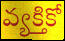
వ్యక్తికో